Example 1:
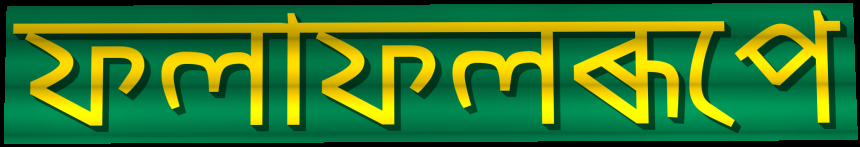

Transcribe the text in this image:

ফলাফলৰূপে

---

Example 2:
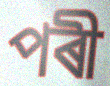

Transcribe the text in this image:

পৰী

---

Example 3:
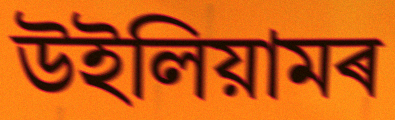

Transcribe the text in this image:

উইলিয়ামৰ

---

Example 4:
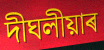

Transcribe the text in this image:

দীঘলীয়াৰ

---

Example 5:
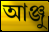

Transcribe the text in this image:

আঞ্জু